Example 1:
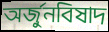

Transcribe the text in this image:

অর্জুনবিষাদ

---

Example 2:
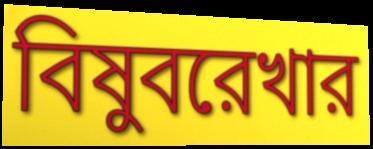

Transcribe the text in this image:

বিষুবরেখার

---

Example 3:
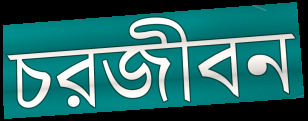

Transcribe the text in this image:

চরজীবন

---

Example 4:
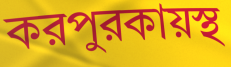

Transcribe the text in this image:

করপুরকায়স্থ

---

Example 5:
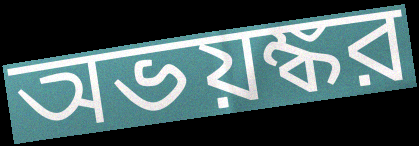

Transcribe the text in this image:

অভয়ঙ্কর